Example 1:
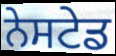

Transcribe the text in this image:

ਨੇਸਟੇਡ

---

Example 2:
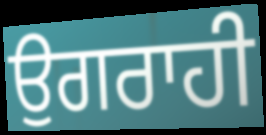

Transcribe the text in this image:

ਉਗਰਾਹੀ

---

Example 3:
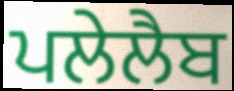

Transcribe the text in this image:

ਪਲੇਲੈਬ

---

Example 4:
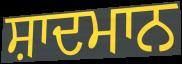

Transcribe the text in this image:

ਸ਼ਾਦਮਾਨ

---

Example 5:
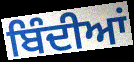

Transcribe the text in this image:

ਬਿੰਦੀਆਂ